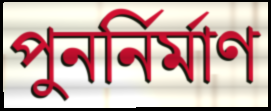
পুনৰ্নিৰ্মাণ